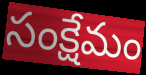
సంక్షేమం